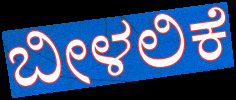
ಬೀಳಲಿಕೆ